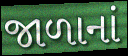
જાળાનાં